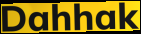
Dahhak